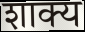
शाक्य